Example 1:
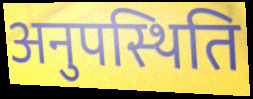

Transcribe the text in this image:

अनुपस्थिति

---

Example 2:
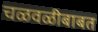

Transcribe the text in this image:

चळवळीबाबत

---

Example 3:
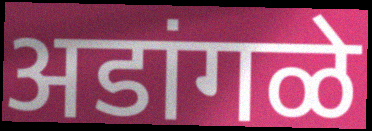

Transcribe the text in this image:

अडांगळे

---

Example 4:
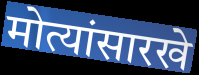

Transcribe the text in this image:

मोत्यांसारखे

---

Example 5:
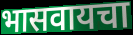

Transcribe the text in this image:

भासवायचा